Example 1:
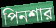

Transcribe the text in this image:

পিনশার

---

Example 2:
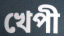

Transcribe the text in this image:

খেপী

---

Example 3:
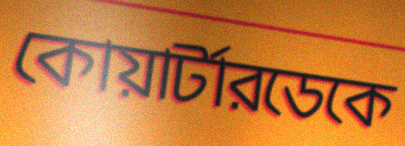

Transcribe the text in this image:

কোয়ার্টারডেকে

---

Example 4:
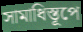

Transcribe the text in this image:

সামাধিস্তূপে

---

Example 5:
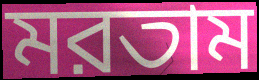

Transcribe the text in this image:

মরতাম